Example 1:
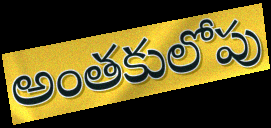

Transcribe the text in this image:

అంతకులోపు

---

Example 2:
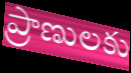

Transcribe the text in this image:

ప్రాణులకు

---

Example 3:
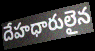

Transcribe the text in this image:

దేహధారులైన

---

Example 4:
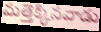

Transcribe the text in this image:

మత్తెక్కినవాడు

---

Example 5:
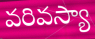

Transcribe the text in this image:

వరివస్యా